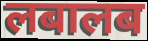
लबालब